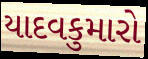
યાદવકુમારો